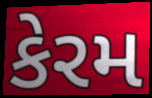
કેરમ